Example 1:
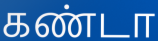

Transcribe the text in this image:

கண்டா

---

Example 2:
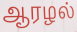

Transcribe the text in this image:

ஆரழல்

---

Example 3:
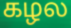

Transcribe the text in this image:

கழல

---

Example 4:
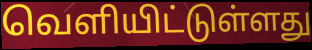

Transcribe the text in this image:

வெளியிட்டுள்ளது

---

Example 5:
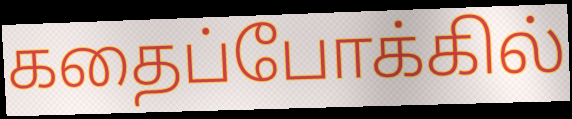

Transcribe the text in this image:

கதைப்போக்கில்